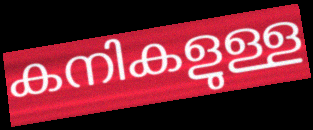
കനികളുള്ള